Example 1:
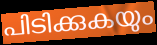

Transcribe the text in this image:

പിടിക്കുകയും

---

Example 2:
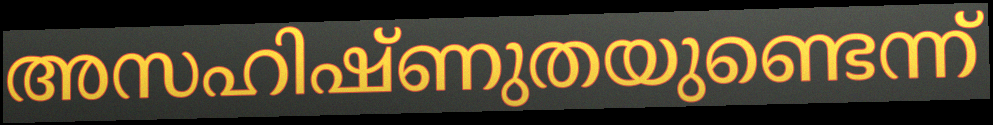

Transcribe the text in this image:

അസഹിഷ്ണുതയുണ്ടെന്ന്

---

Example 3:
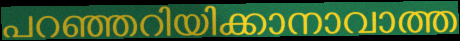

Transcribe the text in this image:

പറഞ്ഞറിയിക്കാനാവാത്ത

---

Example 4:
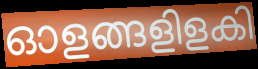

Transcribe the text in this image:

ഓളങ്ങളിളകി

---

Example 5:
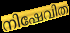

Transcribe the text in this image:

നിഷേവിത